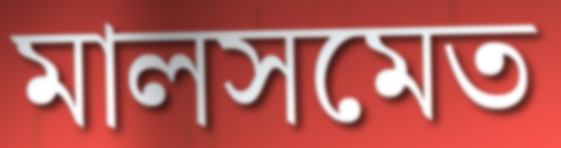
মালসমেত